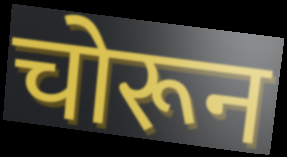
चोरून